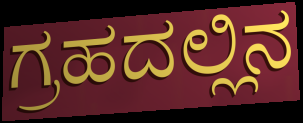
ಗ್ರಹದಲ್ಲಿನ